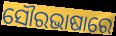
ସୌରଭାଷାରେ